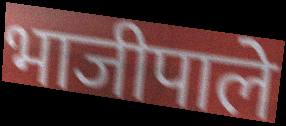
भाजीपाले